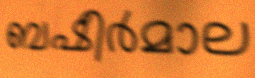
ബഷീർമാല